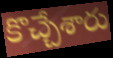
కొచ్చేశారు